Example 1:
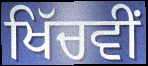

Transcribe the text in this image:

ਖਿੱਚਵੀਂ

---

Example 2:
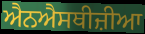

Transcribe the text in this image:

ਐਨਐਸਥੀਜ਼ੀਆ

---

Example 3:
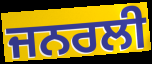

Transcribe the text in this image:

ਜਨਰਲੀ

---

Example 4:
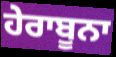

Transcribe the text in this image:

ਹੇਰਾਬੂਨਾ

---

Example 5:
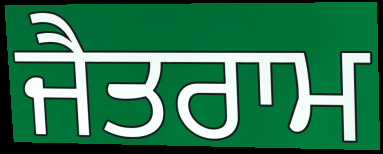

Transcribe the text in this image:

ਜੈਤਰਾਮ